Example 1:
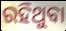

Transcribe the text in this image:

ରହିଥୁବା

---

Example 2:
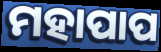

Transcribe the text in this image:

ମହାପାପ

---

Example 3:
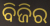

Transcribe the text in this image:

ବିଜିର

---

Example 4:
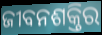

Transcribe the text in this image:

ଜୀବନଶକ୍ତିର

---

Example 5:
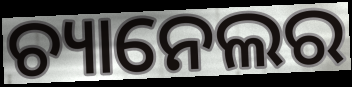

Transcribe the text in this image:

ଚ୍ୟାନେଲର